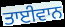
ਤਾਈਵਾਨ